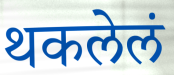
थकलेलं